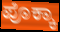
ಪೊಕ್ಕಾ